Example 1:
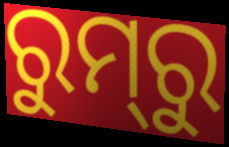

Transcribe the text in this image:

ରୁମ୍‌ରୁ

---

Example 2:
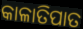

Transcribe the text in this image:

କାଳାତିପାତ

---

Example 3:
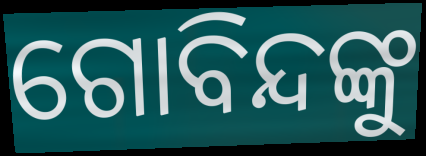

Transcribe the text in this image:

ଗୋବିନ୍ଦଙ୍କୁ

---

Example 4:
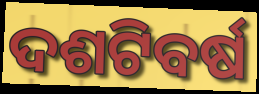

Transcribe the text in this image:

ଦଶଟିବର୍ଷ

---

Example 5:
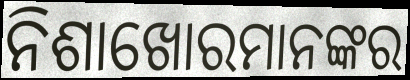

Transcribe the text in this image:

ନିଶାଖୋରମାନଙ୍କର